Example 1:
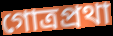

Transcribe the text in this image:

গোত্রপ্রথা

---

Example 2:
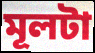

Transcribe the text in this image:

মূলটা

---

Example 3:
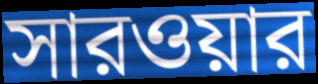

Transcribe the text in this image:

সারওয়ার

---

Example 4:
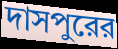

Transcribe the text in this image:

দাসপুরের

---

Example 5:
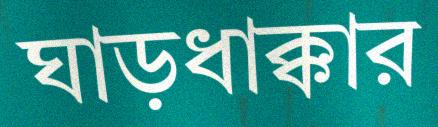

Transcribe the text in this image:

ঘাড়ধাক্কার